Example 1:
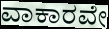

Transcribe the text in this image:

ವಾಕಾರವೇ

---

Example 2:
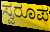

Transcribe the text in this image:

ಸ್ವರೂಪ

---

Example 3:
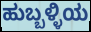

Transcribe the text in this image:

ಹುಬ್ಬಳ್ಳಿಯ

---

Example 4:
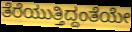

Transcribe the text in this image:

ತೆರೆಯುತ್ತಿದ್ದಂತೆಯೇ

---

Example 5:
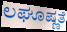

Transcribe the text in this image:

ಲಘೂಷ್ಣತೆ